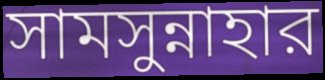
সামসুন্নাহার